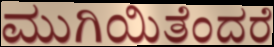
ಮುಗಿಯಿತೆಂದರೆ